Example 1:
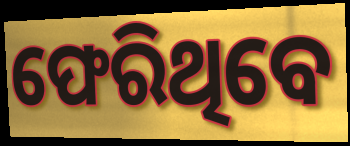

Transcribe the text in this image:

ଫେରିଥିବେ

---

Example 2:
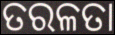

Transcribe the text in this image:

ତରଳତା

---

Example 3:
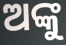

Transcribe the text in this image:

ଅଙ୍କୁ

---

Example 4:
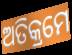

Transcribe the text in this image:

ଅତିକ୍ରମେ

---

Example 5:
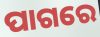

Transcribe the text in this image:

ପାଗରେ